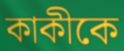
কাকীকে